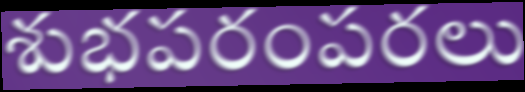
శుభపరంపరలు